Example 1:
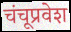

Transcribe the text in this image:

चंचूप्रवेश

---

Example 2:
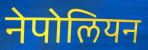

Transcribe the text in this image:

नेपोलियन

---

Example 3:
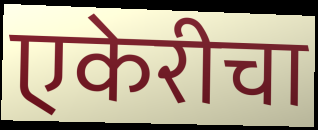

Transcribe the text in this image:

एकेरीचा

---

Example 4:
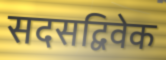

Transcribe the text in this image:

सदसद्विवेक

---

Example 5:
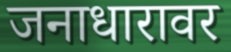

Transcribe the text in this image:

जनाधारावर